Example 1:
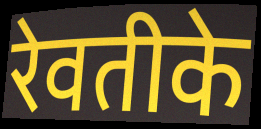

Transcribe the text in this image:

रेवतीके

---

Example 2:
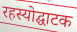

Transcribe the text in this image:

रहस्योद्घाटक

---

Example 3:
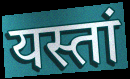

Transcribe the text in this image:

यस्तां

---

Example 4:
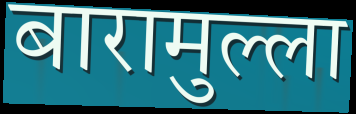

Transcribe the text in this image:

बारामुल्ला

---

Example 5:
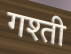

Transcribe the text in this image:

गश्‍ती